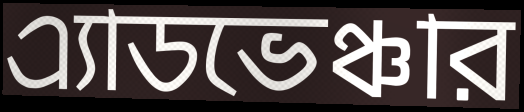
এ্যাডভেঞ্চার